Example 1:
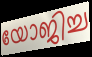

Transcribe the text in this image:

യോജിച്ച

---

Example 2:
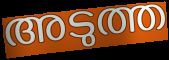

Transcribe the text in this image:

അടുത്ത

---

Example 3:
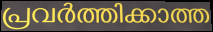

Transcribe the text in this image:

പ്രവർത്തിക്കാത്ത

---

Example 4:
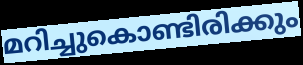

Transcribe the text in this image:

മറിച്ചുകൊണ്ടിരിക്കും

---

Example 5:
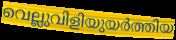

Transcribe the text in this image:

വെല്ലുവിളിയുയർത്തിയ